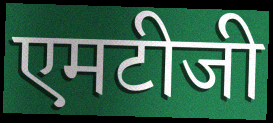
एमटीजी